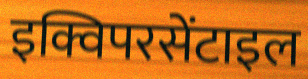
इक्विपरसेंटाइल